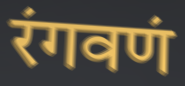
रंगवणं